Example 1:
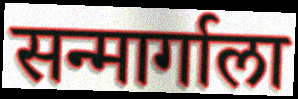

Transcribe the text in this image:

सन्मार्गाला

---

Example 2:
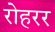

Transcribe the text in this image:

रोहरर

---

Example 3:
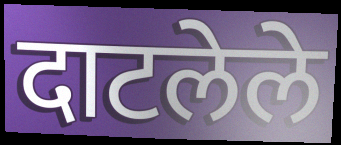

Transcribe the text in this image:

दाटलेले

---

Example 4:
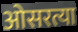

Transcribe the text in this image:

ओसरत्या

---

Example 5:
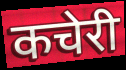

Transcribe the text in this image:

कचेरी